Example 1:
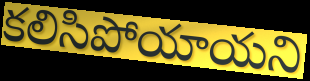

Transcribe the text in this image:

కలిసిపోయాయని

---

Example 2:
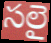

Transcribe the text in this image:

సలై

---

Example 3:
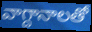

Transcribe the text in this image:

వాగ్దానాలతో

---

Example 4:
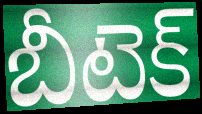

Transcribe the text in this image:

బీటెక్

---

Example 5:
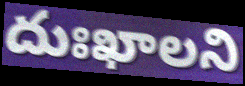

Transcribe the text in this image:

దుఃఖాలని